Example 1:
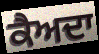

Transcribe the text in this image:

ਕੈਅਦਾ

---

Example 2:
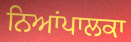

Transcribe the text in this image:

ਨਿਆਂਪਾਲਕਾ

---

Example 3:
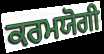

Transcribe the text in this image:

ਕਰਮਯੋਗੀ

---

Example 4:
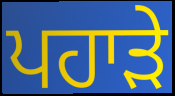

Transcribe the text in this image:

ਪਹਾੜੇ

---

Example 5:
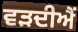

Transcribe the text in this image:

ਵੜਦੀਐਂ